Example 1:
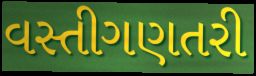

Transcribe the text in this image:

વસ્તીગણતરી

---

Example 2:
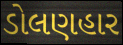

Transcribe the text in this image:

ડોલણહાર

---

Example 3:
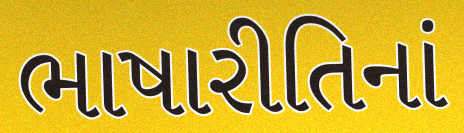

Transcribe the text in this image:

ભાષારીતિનાં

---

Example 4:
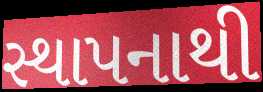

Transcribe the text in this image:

સ્થાપનાથી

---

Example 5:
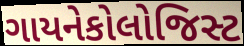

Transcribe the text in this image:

ગાયનેકોલોજિસ્ટ